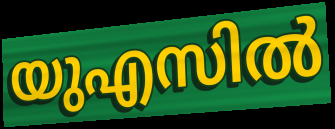
യുഎസിൽ